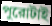
পুরোটাই